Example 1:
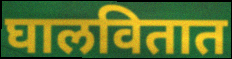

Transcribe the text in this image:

घालवितात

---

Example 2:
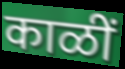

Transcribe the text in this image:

काळीं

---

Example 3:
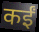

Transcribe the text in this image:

कईं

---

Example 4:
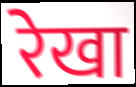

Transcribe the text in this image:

रेखा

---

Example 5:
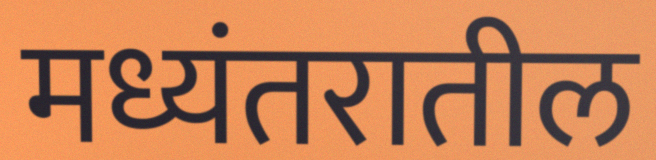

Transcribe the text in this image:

मध्यंतरातील